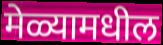
मेळ्यामधील